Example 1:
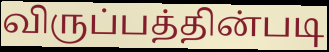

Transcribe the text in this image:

விருப்பத்தின்படி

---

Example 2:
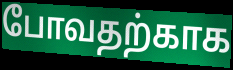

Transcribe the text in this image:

போவதற்காக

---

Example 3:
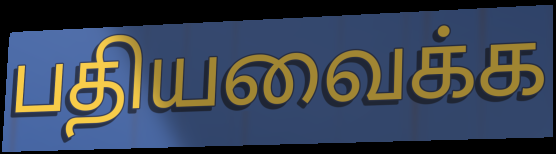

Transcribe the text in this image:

பதியவைக்க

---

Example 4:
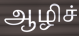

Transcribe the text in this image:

ஆழிச்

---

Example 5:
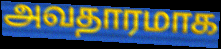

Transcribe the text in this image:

அவதாரமாக